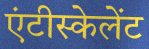
एंटीस्केलेंट